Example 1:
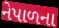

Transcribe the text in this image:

નેપાળના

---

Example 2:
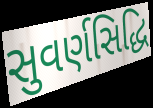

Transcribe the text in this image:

સુવર્ણસિદ્ધિ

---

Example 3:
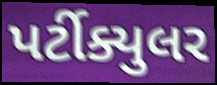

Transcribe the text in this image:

પર્ટીક્યુલર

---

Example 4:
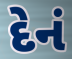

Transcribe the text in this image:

દેનં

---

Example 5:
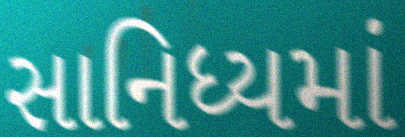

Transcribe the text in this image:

સાનિધ્યમાં